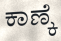
ಕಾಣ್ಕೆ